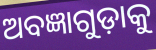
ଅବଜ୍ଞାଗୁଡ଼ାକୁ